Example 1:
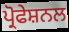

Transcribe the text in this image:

ਪ੍ਰੋਫੇਸ਼ਨਲ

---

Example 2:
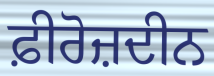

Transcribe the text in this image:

ਫ਼ੀਰੋਜ਼ਦੀਨ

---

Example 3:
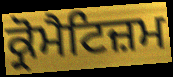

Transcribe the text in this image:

ਕ੍ਰੋਮੈਟਿਜ਼ਮ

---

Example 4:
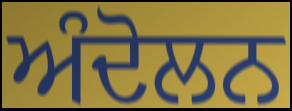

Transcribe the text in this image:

ਅੰਦੋਲਨ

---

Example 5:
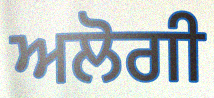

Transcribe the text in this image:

ਅਲੋਗੀ